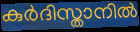
കുർദിസ്താനിൽ